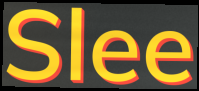
Slee